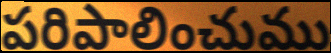
పరిపాలించుము